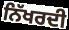
ਨਿੱਖਰਦੀ